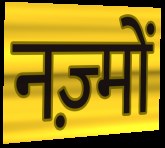
नज़्मों